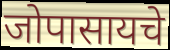
जोपासायचे